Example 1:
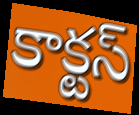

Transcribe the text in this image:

కాక్టస్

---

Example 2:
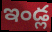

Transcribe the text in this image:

ఇండ్ల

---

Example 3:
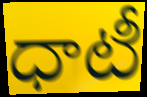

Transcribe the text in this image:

ధాటీ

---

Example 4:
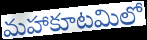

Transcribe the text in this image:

మహాకూటమిలో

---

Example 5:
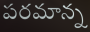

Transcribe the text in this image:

పరమాన్న